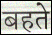
बहते